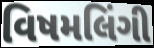
વિષમલિંગી